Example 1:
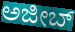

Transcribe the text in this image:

ಅಜೀಬ್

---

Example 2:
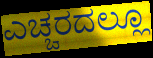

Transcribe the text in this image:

ಎಚ್ಚರದಲ್ಲೂ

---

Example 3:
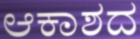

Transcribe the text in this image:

ಆಕಾಶದ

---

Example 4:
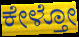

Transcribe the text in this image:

ಕೇಳ್ತೋ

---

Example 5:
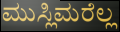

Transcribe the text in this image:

ಮುಸ್ಲಿಮರೆಲ್ಲ